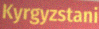
Kyrgyzstani